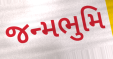
જન્મભુમિ